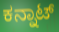
ಕನ್ನಾಟ್